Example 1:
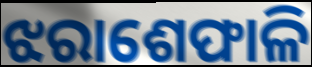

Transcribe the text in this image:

ଝରାଶେଫାଳି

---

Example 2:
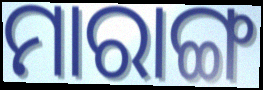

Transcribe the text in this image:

ମାରାଙ୍ଗ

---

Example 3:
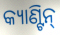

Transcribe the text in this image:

କ୍ୟାଣ୍ଟିନ୍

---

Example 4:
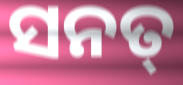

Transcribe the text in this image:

ସନତ୍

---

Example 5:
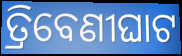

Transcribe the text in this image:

ତ୍ରିବେଣୀଘାଟ